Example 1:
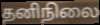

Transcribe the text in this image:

தனிநிலை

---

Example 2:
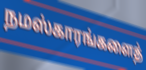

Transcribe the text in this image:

நமஸ்காரங்களைத்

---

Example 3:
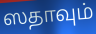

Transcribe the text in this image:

ஸதாவும்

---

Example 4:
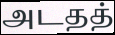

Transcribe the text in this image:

அடதத்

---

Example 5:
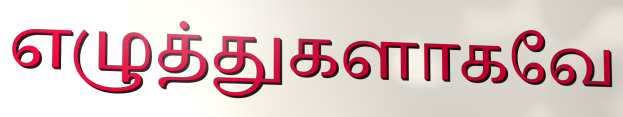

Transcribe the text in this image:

எழுத்துகளாகவே